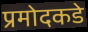
प्रमोदकडे